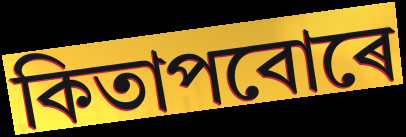
কিতাপবোৰে